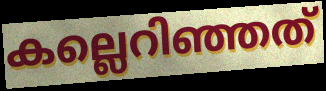
കല്ലെറിഞ്ഞത്